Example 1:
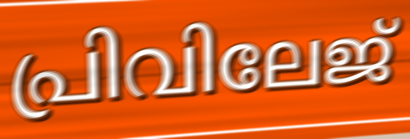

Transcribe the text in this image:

പ്രിവിലേജ്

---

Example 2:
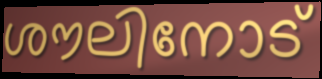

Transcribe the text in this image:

ശൗലിനോട്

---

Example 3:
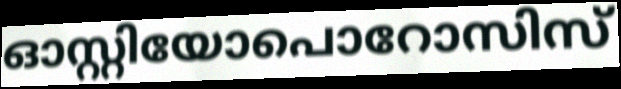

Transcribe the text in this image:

ഓസ്റ്റിയോപൊറോസിസ്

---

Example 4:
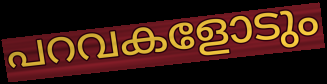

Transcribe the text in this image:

പറവകളോടും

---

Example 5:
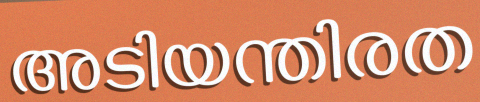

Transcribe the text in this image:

അടിയന്തിരത